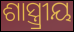
ଶାସ୍ତ୍ର୍ରୀୟ